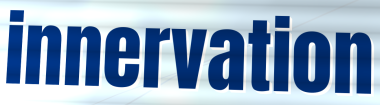
innervation